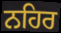
ਨਹਿਰ